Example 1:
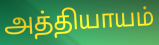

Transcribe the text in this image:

அத்தியாயம்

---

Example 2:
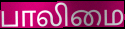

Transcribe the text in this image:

பாலிமை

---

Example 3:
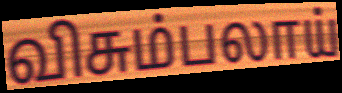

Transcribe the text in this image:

விசும்பலாய்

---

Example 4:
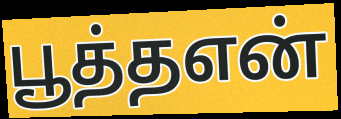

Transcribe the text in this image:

பூத்தஎன்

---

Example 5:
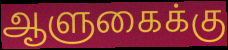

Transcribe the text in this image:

ஆளுகைக்கு